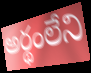
అర్థంలేని